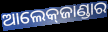
ଆଲେକ୍‌ଜାଣ୍ଡାର